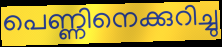
പെണ്ണിനെക്കുറിച്ചു